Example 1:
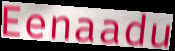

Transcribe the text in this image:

Eenaadu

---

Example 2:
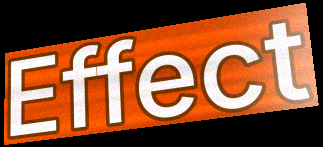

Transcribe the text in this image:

Effect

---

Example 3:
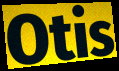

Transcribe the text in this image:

Otis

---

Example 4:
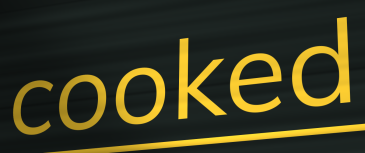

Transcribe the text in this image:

cooked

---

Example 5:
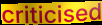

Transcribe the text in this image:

criticised